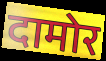
दामोर